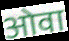
ओवा